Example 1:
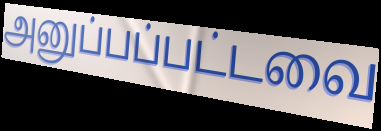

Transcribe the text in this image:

அனுப்பப்பட்டவை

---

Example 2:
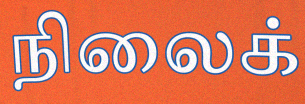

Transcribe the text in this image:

நிலைக்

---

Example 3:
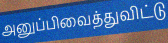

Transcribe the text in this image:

அனுப்பிவைத்துவிட்டு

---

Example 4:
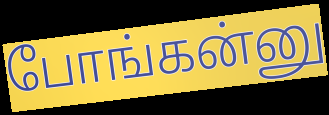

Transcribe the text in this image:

போங்கன்னு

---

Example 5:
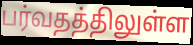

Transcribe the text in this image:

பர்வதத்திலுள்ள